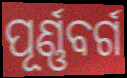
ପୂର୍ଣ୍ଣବର୍ଗ